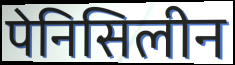
पेनिसिलीन